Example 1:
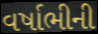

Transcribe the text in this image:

વર્ષાભીની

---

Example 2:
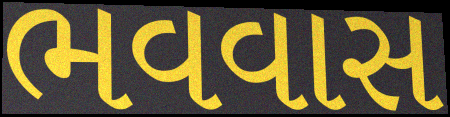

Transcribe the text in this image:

ભવવાસ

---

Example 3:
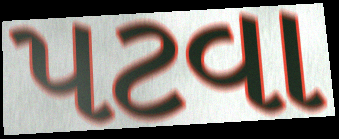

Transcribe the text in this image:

પટવા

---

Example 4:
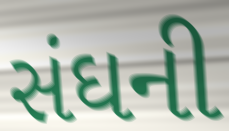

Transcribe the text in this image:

સંઘની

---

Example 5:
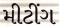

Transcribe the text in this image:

મીટીંગ